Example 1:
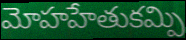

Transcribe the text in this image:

మోహహేతుకమ్పి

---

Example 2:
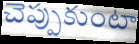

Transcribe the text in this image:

చెప్పుకుంటా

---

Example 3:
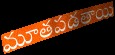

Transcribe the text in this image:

మూతపడతాయి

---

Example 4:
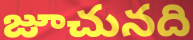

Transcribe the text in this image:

జూచునది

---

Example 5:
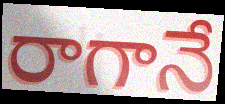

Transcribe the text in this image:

రాగానే